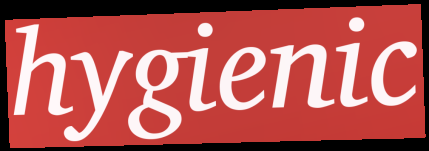
hygienic